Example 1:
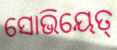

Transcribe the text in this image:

ସୋଭିୟେତ୍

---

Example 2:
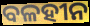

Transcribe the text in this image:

ବଳହୀନ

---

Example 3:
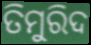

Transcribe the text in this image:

ତିମୁରିଦ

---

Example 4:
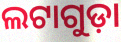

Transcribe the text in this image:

ଲଟାଗୁଡ଼ା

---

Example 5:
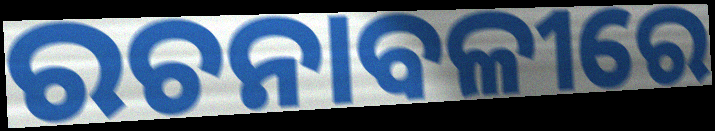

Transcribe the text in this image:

ରଚନାବଳୀରେ